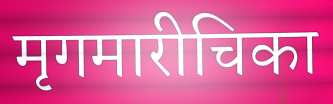
मृगमारीचिका